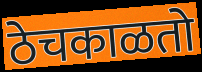
ठेचकाळतो